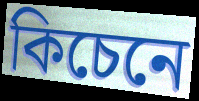
কিচেনে